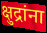
क्षुद्रांना